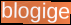
blogige